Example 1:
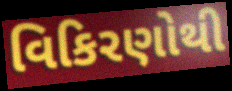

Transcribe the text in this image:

વિકિરણોથી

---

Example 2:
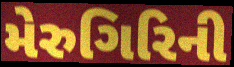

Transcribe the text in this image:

મેરુગિરિની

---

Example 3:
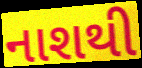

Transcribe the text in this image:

નાશથી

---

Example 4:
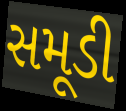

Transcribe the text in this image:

સમૂડી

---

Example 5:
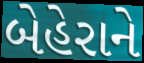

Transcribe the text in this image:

બેહેરાને